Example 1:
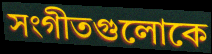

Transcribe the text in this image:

সংগীতগুলোকে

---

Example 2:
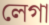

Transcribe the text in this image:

লেগা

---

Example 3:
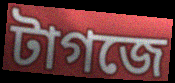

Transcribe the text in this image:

টাগজে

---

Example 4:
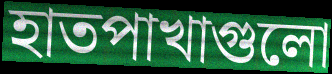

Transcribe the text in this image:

হাতপাখাগুলো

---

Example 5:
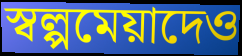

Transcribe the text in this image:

স্বল্পমেয়াদেও